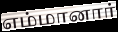
எம்மானார்